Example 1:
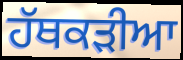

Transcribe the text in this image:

ਹੱਥਕੜੀਆ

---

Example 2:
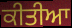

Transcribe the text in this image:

ਕੀਤੀਆ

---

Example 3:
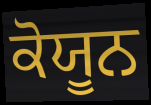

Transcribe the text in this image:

ਕੋਯੂਨ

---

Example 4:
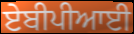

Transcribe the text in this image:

ਏਬੀਪੀਆਈ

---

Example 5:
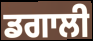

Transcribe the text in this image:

ਡਗਾਲੀ